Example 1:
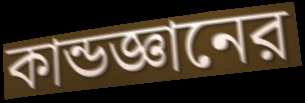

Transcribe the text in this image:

কান্ডজ্ঞানের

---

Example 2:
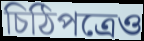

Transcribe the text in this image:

চিঠিপত্রেও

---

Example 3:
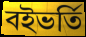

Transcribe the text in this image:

বইভর্তি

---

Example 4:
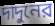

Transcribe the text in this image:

দাদুনের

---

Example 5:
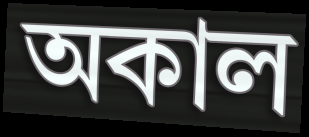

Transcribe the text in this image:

অকাল